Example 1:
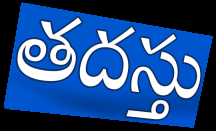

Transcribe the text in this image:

తదస్తు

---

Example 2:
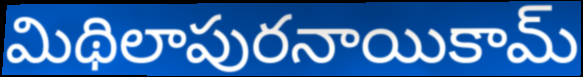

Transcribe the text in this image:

మిథిలాపురనాయికామ్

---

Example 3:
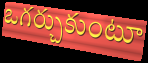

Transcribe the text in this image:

ఒగర్చుకుంటూ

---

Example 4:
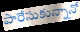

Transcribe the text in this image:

పారేసుకున్నానో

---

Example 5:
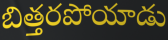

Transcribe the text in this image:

బిత్తరపోయాడు